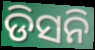
ଡିସନି